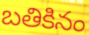
బతికినం